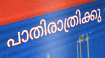
പാതിരാത്രിക്കു